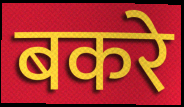
बकरे